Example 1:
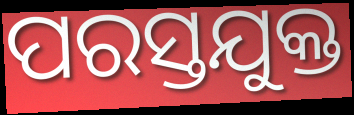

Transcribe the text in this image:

ପରସ୍ତଯୁକ୍ତ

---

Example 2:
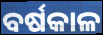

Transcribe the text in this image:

ବର୍ଷକାଳ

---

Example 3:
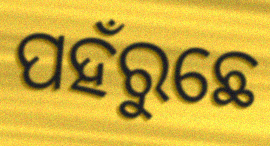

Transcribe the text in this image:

ପହଁରୁଛେ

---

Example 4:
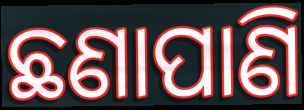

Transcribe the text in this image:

ଛଣାପାଣି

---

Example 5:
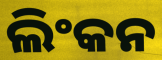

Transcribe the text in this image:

ଲିଂକନ